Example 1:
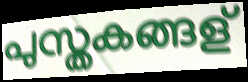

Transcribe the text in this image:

പുസ്തകങ്ങള്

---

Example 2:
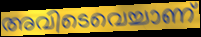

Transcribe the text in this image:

അവിടെവെച്ചാണ്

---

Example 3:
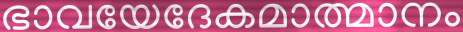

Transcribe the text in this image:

ഭാവയേദേകമാത്മാനം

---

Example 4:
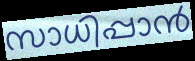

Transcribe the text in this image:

സാധിപ്പാൻ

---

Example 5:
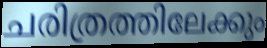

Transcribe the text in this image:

ചരിത്രത്തിലേക്കും